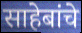
साहेबांचे